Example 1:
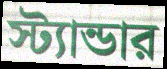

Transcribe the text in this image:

স্ট্যান্ডার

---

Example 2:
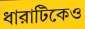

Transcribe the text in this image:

ধারাটিকেও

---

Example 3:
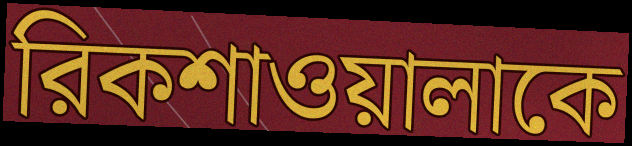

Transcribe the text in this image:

রিকশাওয়ালাকে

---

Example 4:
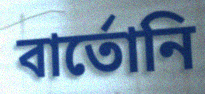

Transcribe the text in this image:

বার্তোনি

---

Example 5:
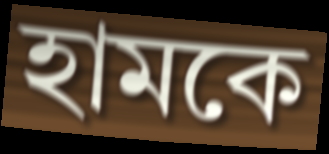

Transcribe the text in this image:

হামকে